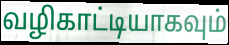
வழிகாட்டியாகவும்